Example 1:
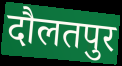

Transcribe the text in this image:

दौलतपुर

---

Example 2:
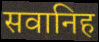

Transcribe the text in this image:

सवानिह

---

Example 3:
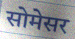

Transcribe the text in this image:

सोमेसर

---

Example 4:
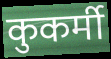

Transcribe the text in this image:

कुकर्मी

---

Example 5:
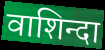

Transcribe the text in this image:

वाशिन्दा